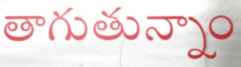
తాగుతున్నాం